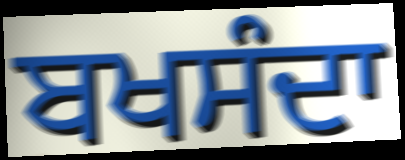
ਬਖਸੰਦਾ